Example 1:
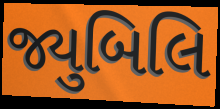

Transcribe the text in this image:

જ્યુબિલિ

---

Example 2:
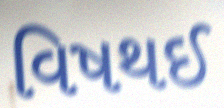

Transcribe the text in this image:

વિષથઈ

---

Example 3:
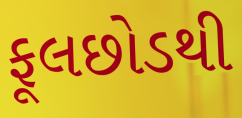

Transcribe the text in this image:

ફૂલછોડથી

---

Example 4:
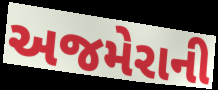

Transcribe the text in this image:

અજમેરાની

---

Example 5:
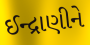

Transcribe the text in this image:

ઈન્દ્રાણીને